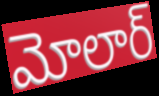
మోలార్